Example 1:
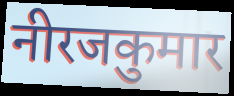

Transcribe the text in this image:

नीरजकुमार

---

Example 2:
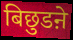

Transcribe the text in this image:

बिछुडऩे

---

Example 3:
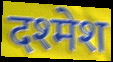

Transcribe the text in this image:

दश्मेश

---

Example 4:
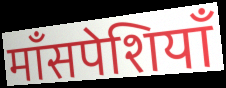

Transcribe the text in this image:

माँसपेशियाँ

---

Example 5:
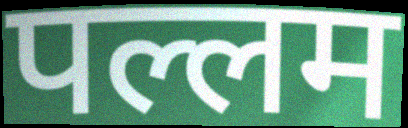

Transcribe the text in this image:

पल्लम